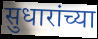
सुधारांच्या